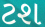
ટશ